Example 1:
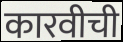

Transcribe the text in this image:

कारवीची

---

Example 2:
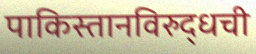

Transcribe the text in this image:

पाकिस्तानविरुद्धची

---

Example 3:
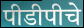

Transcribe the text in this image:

पीडीपीचे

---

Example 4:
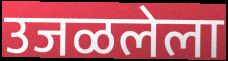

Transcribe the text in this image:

उजळलेला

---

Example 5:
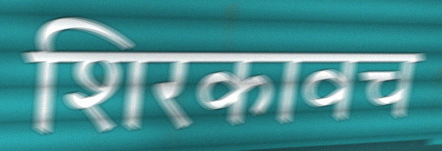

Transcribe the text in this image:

शिरकावच